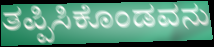
ತಪ್ಪಿಸಿಕೊಂಡವನು